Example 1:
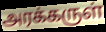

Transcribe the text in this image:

அரக்கருள்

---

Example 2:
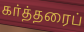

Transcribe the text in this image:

கர்த்தரைப்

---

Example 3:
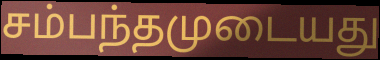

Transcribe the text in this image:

சம்பந்தமுடையது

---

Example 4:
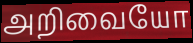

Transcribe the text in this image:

அறிவையோ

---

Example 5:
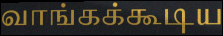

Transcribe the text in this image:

வாங்கக்கூடிய